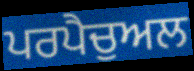
ਪਰਪੈਚੁਅਲ